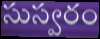
సుస్వరం